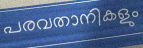
പരവതാനികളും